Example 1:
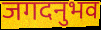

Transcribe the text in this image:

जगदनुभव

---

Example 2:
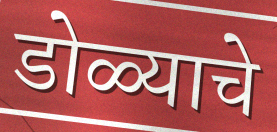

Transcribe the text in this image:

डोळ्याचे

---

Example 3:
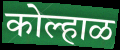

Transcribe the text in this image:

कोल्हाळ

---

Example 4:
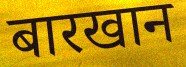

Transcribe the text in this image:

बारखान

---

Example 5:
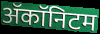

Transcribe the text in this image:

ॲकॉनिटम